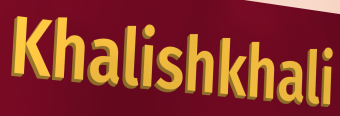
Khalishkhali